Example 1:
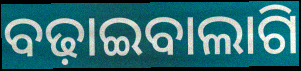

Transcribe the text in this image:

ବଢ଼ାଇବାଲାଗି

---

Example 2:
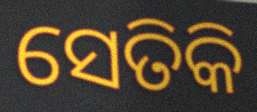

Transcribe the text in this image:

ସେତିକି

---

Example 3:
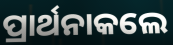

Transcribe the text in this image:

ପ୍ରାର୍ଥନାକଲେ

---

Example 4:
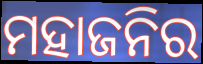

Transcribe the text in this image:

ମହାଜନିର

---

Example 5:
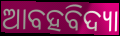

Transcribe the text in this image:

ଆବହବିଦ୍ୟା